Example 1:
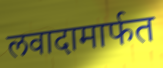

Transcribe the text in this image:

लवादामार्फत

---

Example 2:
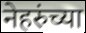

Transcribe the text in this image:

नेहरुंच्या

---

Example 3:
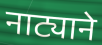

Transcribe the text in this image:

नाट्याने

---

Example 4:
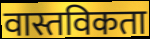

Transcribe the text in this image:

वास्तविकता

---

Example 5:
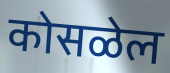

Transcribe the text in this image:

कोसळेल